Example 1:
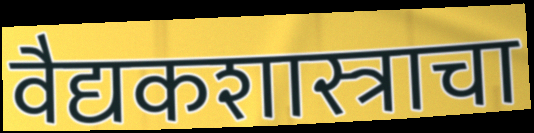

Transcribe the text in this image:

वैद्यकशास्त्राचा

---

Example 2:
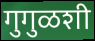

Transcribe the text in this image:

गुगुळशी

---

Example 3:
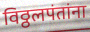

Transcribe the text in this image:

विठ्ठलपंतांना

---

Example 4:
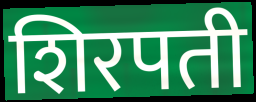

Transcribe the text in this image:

शिरपती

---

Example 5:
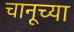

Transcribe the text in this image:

चानूच्या